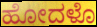
ಹೋದಳೊ